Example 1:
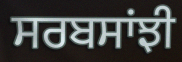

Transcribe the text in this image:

ਸਰਬਸਾਂਝੀ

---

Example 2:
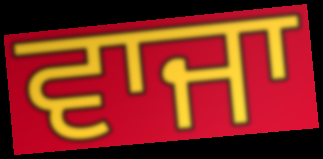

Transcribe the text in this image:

ਵਾਜਾ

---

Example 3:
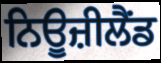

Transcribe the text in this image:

ਨਿਊਜ਼ੀਲੈਂਡ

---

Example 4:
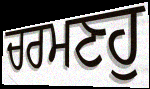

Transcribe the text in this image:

ਚਰਮਣਹੁ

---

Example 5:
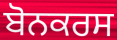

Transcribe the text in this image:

ਬੋਨਕਰਸ